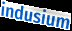
indusium